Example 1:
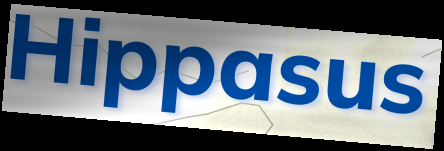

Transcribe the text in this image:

Hippasus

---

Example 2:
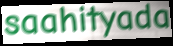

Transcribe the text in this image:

saahityada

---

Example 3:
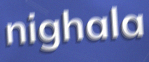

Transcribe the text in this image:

nighala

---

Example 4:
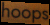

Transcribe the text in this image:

hoops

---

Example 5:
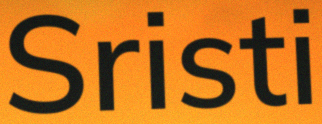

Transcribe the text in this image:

Sristi